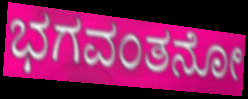
ಭಗವಂತನೋ